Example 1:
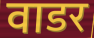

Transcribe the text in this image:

वाडर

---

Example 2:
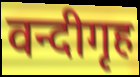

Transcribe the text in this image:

वन्दीगृह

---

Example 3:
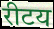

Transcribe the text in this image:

रीटय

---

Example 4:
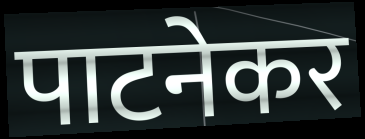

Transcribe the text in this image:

पाटनेकर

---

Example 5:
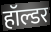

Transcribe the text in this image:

हॉल्डर